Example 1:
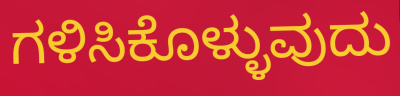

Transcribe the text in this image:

ಗಳಿಸಿಕೊಳ್ಳುವುದು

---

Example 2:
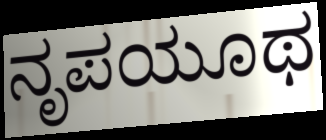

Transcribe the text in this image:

ನೃಪಯೂಥ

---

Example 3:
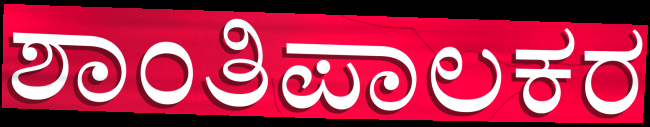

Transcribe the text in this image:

ಶಾಂತಿಪಾಲಕರ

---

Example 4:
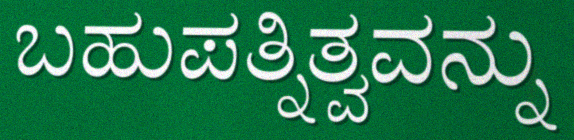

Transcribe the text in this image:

ಬಹುಪತ್ನಿತ್ವವನ್ನು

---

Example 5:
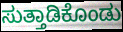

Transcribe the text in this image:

ಸುತ್ತಾಡಿಕೊಂಡು